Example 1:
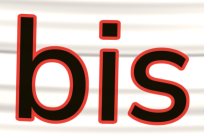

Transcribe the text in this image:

bis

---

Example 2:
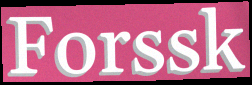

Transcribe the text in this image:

Forssk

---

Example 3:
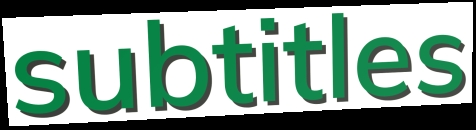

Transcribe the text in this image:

subtitles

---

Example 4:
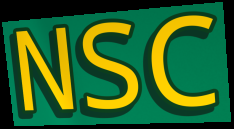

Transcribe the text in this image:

NSC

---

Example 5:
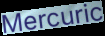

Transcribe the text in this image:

Mercuric